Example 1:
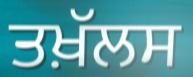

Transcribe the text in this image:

ਤਖ਼ੱਲਸ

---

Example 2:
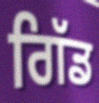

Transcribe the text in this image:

ਗਿੱਡ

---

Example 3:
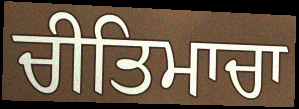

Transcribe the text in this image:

ਚੀਤਿਮਾਚਾ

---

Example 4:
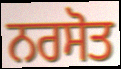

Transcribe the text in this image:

ਨਰਸੋਤ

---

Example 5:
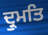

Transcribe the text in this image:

ਦ੍ਰੁਮਤਿ